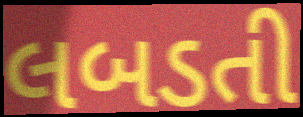
લબડતી